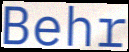
Behr